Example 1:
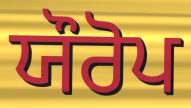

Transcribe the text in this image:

ਯੌਰੋਪ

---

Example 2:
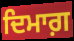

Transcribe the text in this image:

ਦਿਮਾਗ਼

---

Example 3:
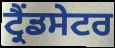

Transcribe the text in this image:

ਟ੍ਰੈਂਡਸੇਟਰ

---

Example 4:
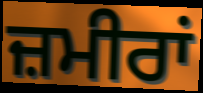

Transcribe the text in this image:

ਜ਼ਮੀਰਾਂ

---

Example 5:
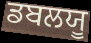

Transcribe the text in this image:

ਡਬਲਯੂ